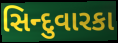
સિન્દુવારકા